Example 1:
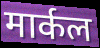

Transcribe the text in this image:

मार्कल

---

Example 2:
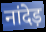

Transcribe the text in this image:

नांदेड़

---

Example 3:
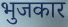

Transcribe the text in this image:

भुजकार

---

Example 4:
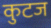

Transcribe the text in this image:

कुटज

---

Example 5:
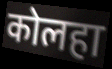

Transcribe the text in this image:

कोलहा